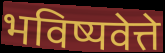
भविष्यवेत्ते